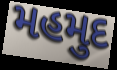
મહમુદ